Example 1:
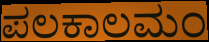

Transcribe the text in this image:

ಪಲಕಾಲಮಂ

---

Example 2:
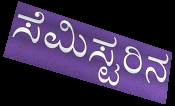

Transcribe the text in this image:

ಸೆಮಿಸ್ಟರಿನ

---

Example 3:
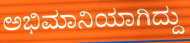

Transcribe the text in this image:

ಅಭಿಮಾನಿಯಾಗಿದ್ದು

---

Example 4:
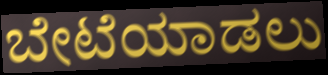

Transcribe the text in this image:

ಬೇಟೆಯಾಡಲು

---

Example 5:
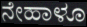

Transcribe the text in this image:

ನೇಹಾಳೂ